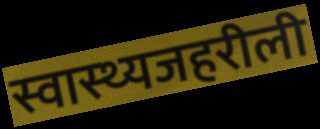
स्वास्थ्यजहरीली